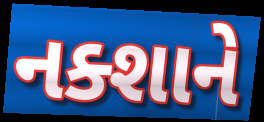
નક્શાને